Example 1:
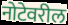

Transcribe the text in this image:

नोटेवरील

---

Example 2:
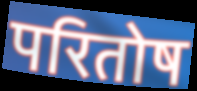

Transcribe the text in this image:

परितोष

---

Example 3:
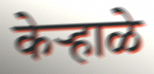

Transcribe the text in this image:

केऱ्हाळे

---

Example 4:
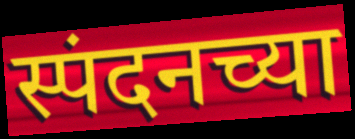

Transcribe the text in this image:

स्पंदनच्या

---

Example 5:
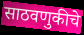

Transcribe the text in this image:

साठवणुकीचे